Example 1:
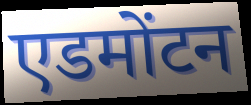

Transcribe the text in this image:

एडमोंटन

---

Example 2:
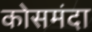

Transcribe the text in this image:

कोसमंदा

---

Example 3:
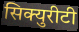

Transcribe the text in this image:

सिक्युरीटी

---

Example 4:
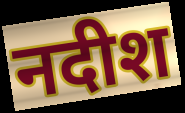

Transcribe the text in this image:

नदीश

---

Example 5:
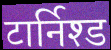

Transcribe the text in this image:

टार्निश्ड